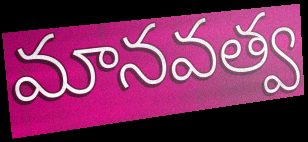
మానవత్వ